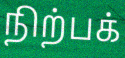
நிற்பக்